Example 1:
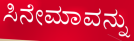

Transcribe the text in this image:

ಸಿನೇಮಾವನ್ನು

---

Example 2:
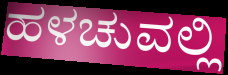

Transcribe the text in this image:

ಹಳಚುವಲ್ಲಿ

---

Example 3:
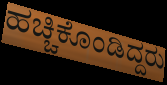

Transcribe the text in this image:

ಹಚ್ಚಿಕೊಂಡಿದ್ದರು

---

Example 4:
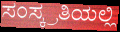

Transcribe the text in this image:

ಸಂಸ್ಕ್ರತಿಯಲ್ಲಿ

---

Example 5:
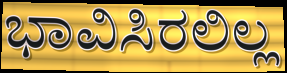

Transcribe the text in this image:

ಭಾವಿಸಿರಲಿಲ್ಲ